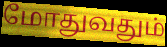
மோதுவதும்